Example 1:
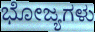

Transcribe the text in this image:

ಭೋಜ್ಯಗಳು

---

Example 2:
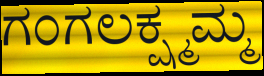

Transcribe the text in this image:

ಗಂಗಲಕ್ಷ್ಮಮ್ಮ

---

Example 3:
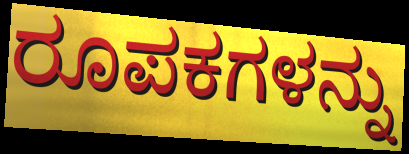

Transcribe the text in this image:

ರೂಪಕಗಳನ್ನು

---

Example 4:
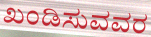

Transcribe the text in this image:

ಖಂಡಿಸುವವರ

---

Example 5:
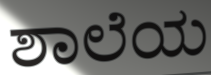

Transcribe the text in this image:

ಶಾಲೆಯ